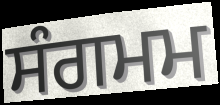
ਸੰਗਮਮ